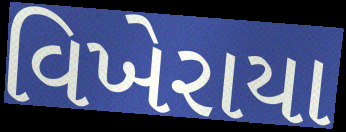
વિખેરાયા